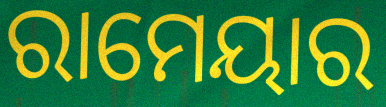
ରାମେୟାର